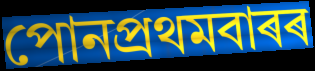
পোনপ্ৰথমবাৰৰ